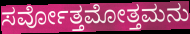
ಸರ್ವೋತ್ತಮೋತ್ತಮನು